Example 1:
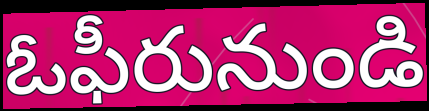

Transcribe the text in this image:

ఓఫీరునుండి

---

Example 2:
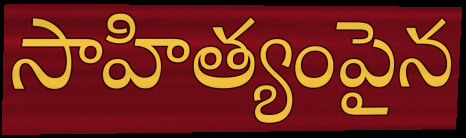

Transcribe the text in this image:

సాహిత్యంపైన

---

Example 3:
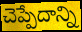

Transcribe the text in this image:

చెప్పేదాన్ని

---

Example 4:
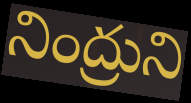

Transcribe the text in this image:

నింద్రుని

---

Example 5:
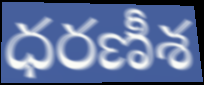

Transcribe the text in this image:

ధరణీశ